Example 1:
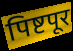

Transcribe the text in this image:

पिष्टपूर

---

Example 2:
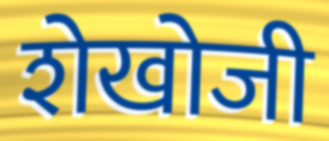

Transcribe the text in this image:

शेखोजी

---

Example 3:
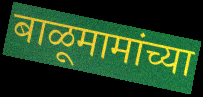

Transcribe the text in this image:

बाळूमामांच्या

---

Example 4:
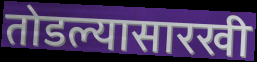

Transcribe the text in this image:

तोडल्यासारखी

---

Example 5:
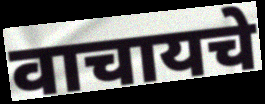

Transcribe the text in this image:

वाचायचे